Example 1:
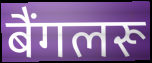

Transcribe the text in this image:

बैंगलरू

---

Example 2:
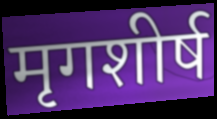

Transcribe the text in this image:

मृगशीर्ष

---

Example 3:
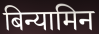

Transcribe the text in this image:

बिन्यामिन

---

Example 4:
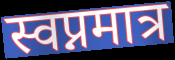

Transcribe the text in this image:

स्वप्नमात्र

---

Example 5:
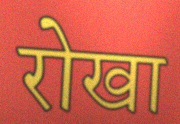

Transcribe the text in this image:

रोखा